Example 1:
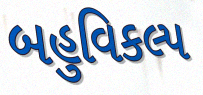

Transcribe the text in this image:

બહુવિકલ્પ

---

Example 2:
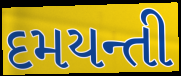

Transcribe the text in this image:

દમયન્તી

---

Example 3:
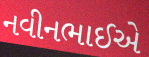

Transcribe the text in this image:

નવીનભાઈએ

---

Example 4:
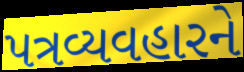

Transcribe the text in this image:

પત્રવ્યવહારને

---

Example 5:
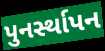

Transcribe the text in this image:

પુનર્સ્થાપન